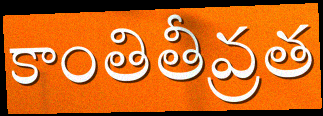
కాంతితీవ్రత